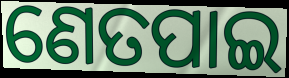
ଣେତପାଇ